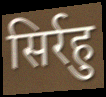
सिर्रहु